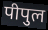
पीपुल